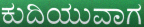
ಕುದಿಯುವಾಗ